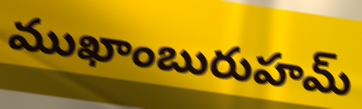
ముఖాంబురుహమ్